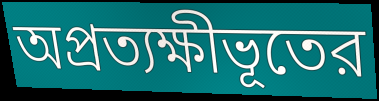
অপ্রত্যক্ষীভূতের